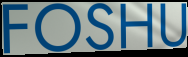
FOSHU